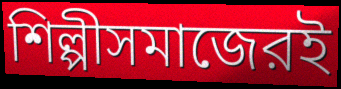
শিল্পীসমাজেরই